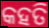
କହତି